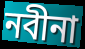
নবীনা